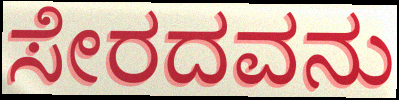
ಸೇರದವನು